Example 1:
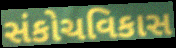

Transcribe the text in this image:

સંકોચવિકાસ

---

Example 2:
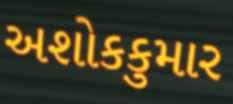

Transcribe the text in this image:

અશોકકુમાર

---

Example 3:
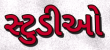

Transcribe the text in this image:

સ્ટુડીઓ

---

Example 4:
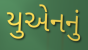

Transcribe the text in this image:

યુએનનું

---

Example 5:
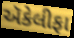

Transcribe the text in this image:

ઍકેલીફા